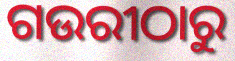
ଗଉରୀଠାରୁ